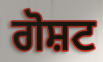
ਗੋਸ਼ਟ